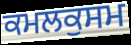
ਕਮਲਕੁਸਮ